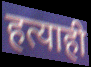
हत्याही